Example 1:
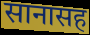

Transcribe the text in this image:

सानासह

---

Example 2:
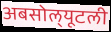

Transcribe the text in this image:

अबसोल्यूटली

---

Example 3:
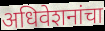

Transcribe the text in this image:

अधिवेशनांचा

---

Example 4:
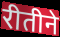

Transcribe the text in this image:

रीतीने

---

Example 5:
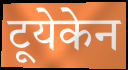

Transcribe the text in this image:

टूयेकेन